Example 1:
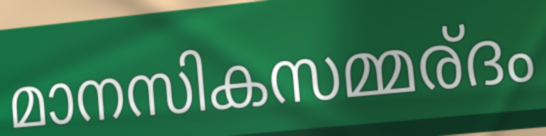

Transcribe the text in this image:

മാനസികസമ്മര്ദം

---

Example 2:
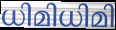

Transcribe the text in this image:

ധിമിധിമി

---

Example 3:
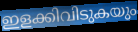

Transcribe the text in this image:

ഇളക്കിവിടുകയും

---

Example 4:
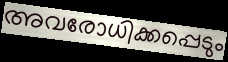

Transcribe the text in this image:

അവരോധിക്കപ്പെടും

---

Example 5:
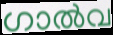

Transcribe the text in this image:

ഗാൽവ